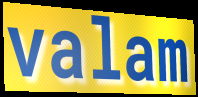
valam